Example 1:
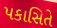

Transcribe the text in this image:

પકાસિતે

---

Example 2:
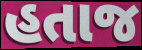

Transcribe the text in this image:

હતાજ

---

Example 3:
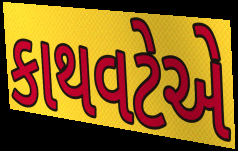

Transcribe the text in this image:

કાથવટેએ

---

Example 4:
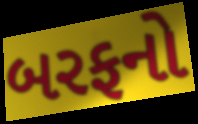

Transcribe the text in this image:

બરફનો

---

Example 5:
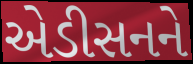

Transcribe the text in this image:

એડીસનને